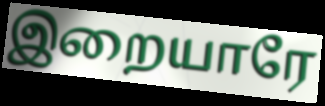
இறையாரே